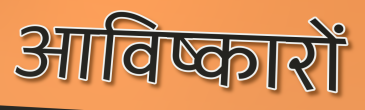
आविष्‍कारों